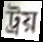
ট্রয়